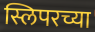
स्लिपरच्या